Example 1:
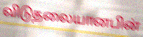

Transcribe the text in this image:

விடுதலையானபின்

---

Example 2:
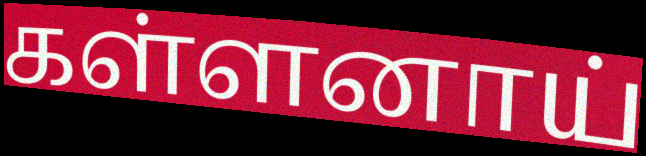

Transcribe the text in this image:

கள்ளனாய்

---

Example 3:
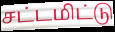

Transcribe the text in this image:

சட்டமிட்டு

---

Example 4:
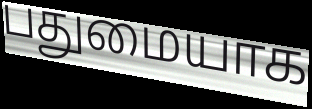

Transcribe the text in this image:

பதுமையாக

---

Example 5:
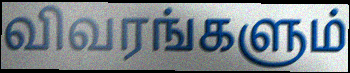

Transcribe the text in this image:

விவரங்களும்